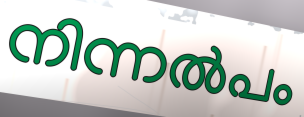
നിന്നൽപം